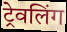
ट्रेवलिंग